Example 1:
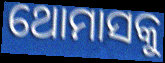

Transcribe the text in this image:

ଥୋମାସକୁ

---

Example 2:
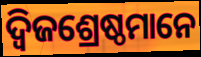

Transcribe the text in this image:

ଦ୍ୱିଜଶ୍ରେଷ୍ଠମାନେ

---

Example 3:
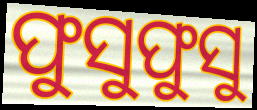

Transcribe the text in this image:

ଫୁସୁଫୁସୁ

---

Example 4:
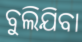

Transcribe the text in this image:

ବୁଲିଯିବା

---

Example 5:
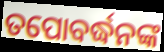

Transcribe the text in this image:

ତପୋବର୍ଦ୍ଧନଙ୍କ